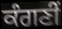
ਕੰਗਣੀਂ